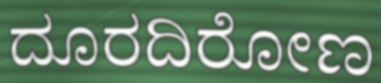
ದೂರದಿರೋಣ